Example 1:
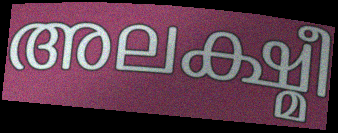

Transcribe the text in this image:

അലക്ഷ്മീ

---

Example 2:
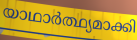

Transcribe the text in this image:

യാഥാർത്ഥ്യമാക്കി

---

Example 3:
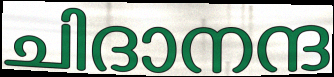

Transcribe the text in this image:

ചിദാനന്ദ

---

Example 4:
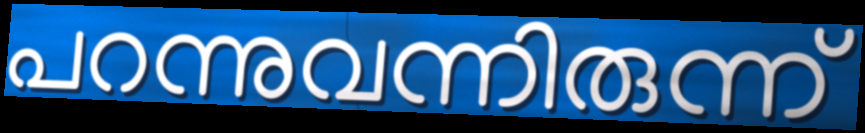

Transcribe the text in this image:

പറന്നുവന്നിരുന്ന്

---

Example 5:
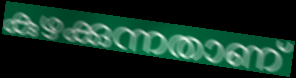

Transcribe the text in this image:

കുഴക്കുന്നതാണ്